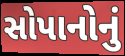
સોપાનોનું